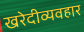
खरेदीव्यवहार